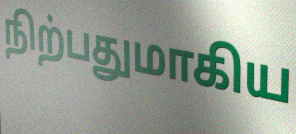
நிற்பதுமாகிய